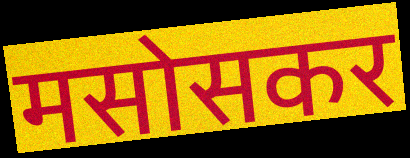
मसोसकर